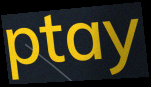
ptay